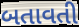
બતાવતી